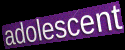
adolescent